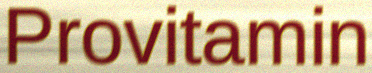
Provitamin